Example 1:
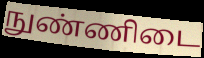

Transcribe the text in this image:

நுண்ணிடை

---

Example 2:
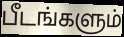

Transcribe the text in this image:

பீடங்களும்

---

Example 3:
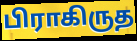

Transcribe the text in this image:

பிராகிருத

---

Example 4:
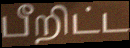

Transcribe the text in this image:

பீறிட்ட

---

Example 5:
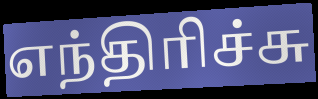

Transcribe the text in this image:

எந்திரிச்சு